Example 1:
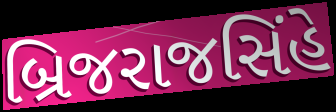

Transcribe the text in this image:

બ્રિજરાજસિંહે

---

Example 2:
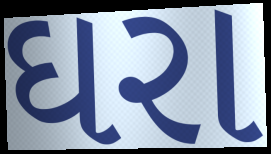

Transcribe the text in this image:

ઘરા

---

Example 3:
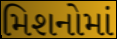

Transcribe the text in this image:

મિશનોમાં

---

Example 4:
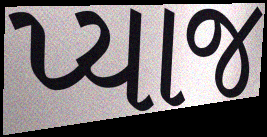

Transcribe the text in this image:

પ્યાજ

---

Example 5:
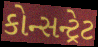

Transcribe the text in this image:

કોન્સન્ટ્રેટ